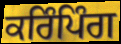
ਕਰਿੰਪਿੰਗ